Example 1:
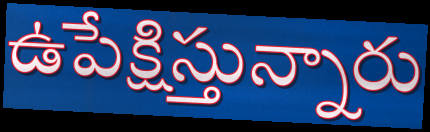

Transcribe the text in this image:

ఉపేక్షిస్తున్నారు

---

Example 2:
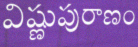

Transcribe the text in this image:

విష్ణుపురాణం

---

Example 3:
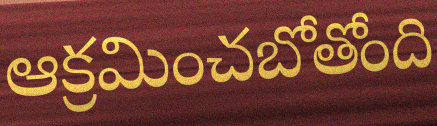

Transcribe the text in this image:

ఆక్రమించబోతోంది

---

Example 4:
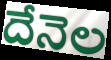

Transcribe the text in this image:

దేనెల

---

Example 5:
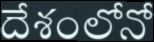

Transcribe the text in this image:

దేశంలోనో